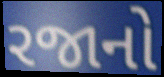
રજાનો